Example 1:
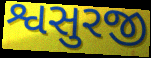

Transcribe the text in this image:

શ્વસુરજી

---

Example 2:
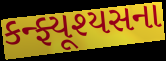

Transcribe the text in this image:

કન્ફ્યૂશ્યસના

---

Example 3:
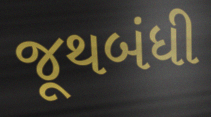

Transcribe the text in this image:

જૂથબંધી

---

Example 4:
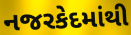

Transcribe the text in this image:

નજરકેદમાંથી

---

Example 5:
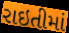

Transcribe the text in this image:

રાઇતીમાં